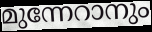
മുന്നേറാനും